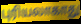
புரியலாகாது